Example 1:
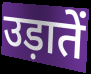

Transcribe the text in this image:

उड़ातें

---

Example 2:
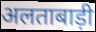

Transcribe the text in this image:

अलताबाड़ी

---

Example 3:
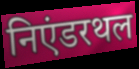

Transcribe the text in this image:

निएंडरथल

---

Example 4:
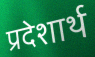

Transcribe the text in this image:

प्रदेशार्थ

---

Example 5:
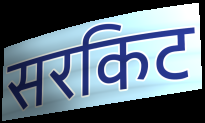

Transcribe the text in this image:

सरकिट